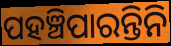
ପହଞ୍ଚିପାରନ୍ତିନି